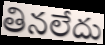
తినలేదు